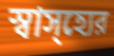
স্বাস্হ্যের